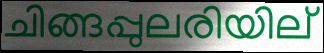
ചിങ്ങപ്പുലരിയില്